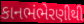
કાનભંભેરણીથી